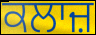
ਕਲਾਜ਼